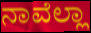
ನಾವೆಲ್ಲಾ